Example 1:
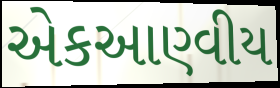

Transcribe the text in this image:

એકઆણ્વીય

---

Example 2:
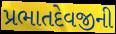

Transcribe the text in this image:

પ્રભાતદેવજીની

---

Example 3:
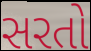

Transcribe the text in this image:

સરતો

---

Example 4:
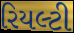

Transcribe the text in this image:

રિયલ્ટી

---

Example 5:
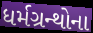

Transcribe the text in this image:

ધર્મગ્રન્થોના